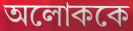
অলোককে